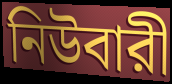
নিউবারী